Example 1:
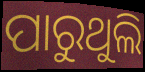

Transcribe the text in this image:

ପାରୁଥୁଲି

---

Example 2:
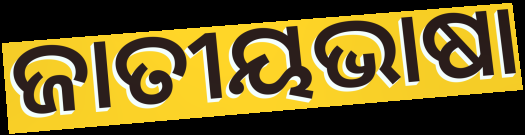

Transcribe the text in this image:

ଜାତୀୟଭାଷା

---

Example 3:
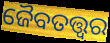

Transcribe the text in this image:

ଜୈବତତ୍ତ୍ୱର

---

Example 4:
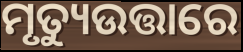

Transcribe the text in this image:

ମୃତ୍ୟୁଉତ୍ତାରେ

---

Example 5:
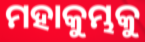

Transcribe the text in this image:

ମହାକୁମ୍ଭକୁ